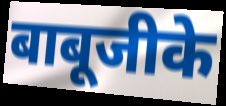
बाबूजीके